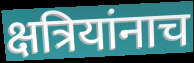
क्षत्रियांनाच